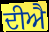
ਦੀਐ